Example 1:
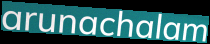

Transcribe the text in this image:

arunachalam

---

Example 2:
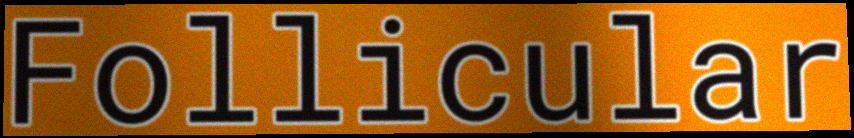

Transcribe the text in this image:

Follicular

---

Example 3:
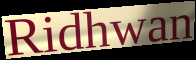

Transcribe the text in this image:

Ridhwan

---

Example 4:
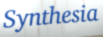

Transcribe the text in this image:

Synthesia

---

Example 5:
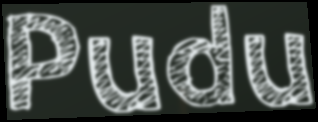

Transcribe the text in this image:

Pudu